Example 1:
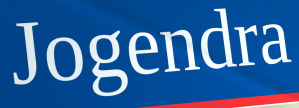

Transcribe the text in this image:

Jogendra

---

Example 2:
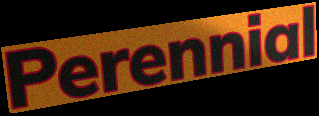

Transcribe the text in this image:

Perennial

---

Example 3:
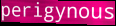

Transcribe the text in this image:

perigynous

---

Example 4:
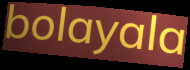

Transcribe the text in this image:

bolayala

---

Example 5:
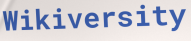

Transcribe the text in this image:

Wikiversity